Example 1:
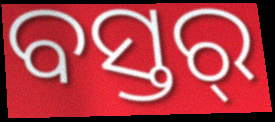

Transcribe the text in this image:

ବସ୍ତର୍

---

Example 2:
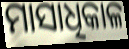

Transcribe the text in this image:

ମାସାଧିକାଳ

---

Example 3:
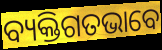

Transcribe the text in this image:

ବ୍ୟକ୍ତିଗତଭାବେ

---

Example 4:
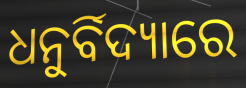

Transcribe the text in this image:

ଧନୁର୍ବିଦ୍ୟାରେ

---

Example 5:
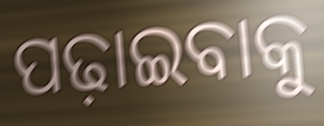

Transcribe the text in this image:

ପଢ଼ାଇବାକୁ